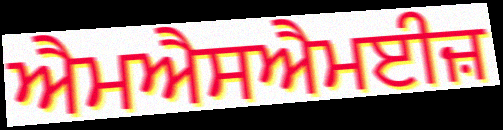
ਐਮਐਸਐਮਈਜ਼